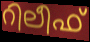
റിലീഫ്